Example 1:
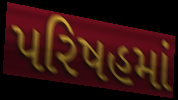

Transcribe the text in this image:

પરિષહમાં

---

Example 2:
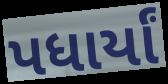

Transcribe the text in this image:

પધાર્યાં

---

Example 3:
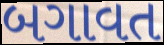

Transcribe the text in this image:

બગાવત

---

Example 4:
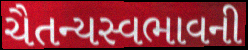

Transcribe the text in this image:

ચૈતન્યસ્વભાવની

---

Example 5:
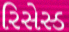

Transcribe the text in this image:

રિસેસ્ડ